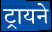
ट्रायने